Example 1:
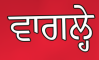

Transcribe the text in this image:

ਵਾਗਲ੍ਹੇ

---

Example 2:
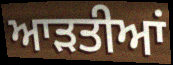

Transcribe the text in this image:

ਆਡ਼ਤੀਆਂ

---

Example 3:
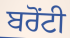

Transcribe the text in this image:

ਬਰੋਂਟੀ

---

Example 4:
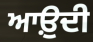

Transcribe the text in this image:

ਆਉ਼ਦੀ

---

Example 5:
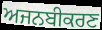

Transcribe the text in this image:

ਅਜਨਬੀਕਰਣ